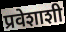
प्रवेशाशी